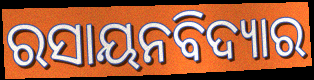
ରସାୟନବିଦ୍ୟାର